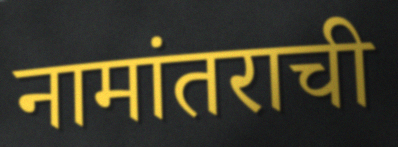
नामांतराची